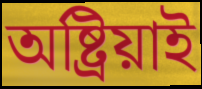
অষ্ট্ৰিয়াই